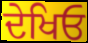
ਦੇਖਿਓ